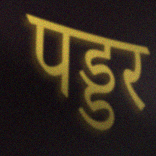
पड्डर